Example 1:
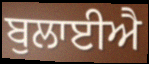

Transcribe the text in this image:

ਬੁਲਾਈਐ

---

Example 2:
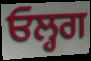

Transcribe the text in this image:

ਓਲ੍ਹਗ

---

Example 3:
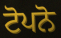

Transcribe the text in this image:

ਟੋਪਨੋ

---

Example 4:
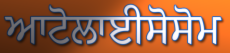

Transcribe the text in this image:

ਆਟੋਲਾਈਸੋਸੋਮ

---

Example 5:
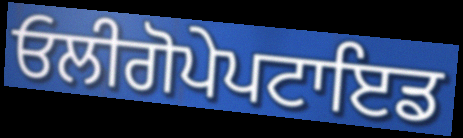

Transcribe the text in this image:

ਓਲੀਗੋਪੇਪਟਾਇਡ